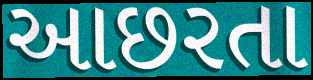
આછરતા